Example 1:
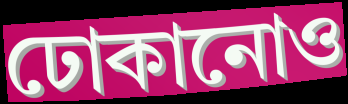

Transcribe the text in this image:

ঢোকানোও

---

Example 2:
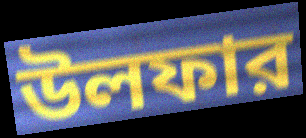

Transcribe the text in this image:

উলফার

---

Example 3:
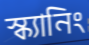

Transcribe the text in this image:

স্ক্যানিং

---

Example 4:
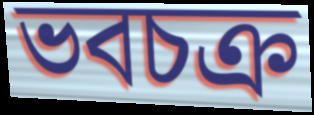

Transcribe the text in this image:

ভবচক্র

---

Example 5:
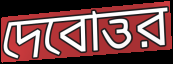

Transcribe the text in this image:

দেবোত্তর